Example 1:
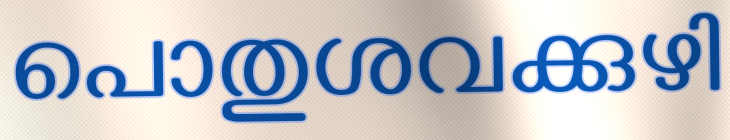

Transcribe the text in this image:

പൊതുശവക്കുഴി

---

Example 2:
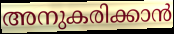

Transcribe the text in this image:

അനുകരിക്കാൻ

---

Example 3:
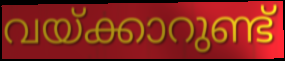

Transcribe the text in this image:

വയ്ക്കാറുണ്ട്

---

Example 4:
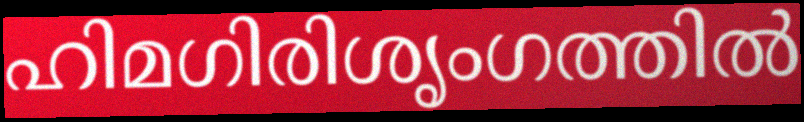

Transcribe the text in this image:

ഹിമഗിരിശൃംഗത്തിൽ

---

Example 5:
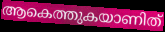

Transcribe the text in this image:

ആകെത്തുകയാണിത്